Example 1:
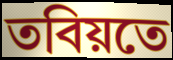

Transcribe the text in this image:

তবিয়তে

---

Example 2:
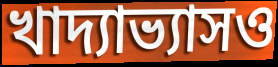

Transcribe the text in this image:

খাদ্যাভ্যাসও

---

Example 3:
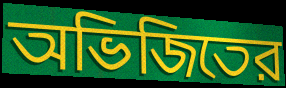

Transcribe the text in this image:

অভিজিতের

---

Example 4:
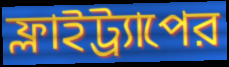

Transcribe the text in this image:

ফ্লাইট্র্যাপের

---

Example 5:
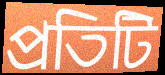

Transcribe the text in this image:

প্রতিটি